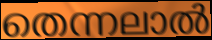
തെന്നലാൽ